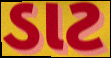
ડાટ